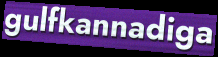
gulfkannadiga